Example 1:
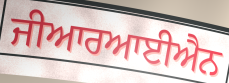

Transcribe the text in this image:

ਜੀਆਰਆਈਐਨ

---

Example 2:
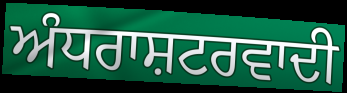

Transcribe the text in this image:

ਅੰਧਰਾਸ਼ਟਰਵਾਦੀ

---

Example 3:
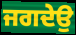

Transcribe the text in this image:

ਜਗਦੇਉ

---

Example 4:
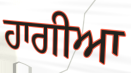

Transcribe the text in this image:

ਹਾਗੀਆ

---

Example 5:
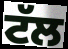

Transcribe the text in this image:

ਟੱਲ